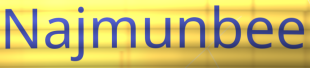
Najmunbee